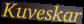
Kuveskar